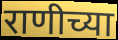
राणीच्या